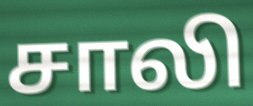
சாலி